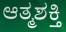
ಆತ್ಮಶಕ್ತಿ